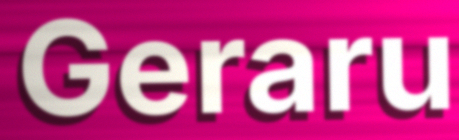
Geraru